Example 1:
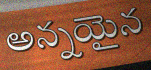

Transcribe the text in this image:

అన్నయైన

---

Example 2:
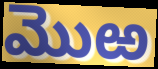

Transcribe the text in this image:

మొఱ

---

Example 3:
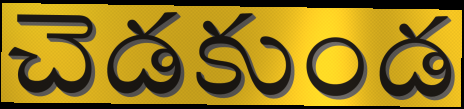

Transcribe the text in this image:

చెడకుండ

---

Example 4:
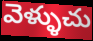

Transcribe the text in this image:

వెళ్ళుచు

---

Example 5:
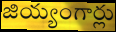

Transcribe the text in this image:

జియ్యంగార్లు